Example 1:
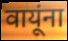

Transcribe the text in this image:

वायूंना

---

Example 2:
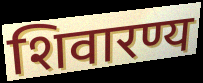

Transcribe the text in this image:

शिवारण्य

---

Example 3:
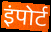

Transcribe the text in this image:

इंपोर्ट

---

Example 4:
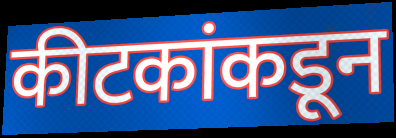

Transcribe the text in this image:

कीटकांकडून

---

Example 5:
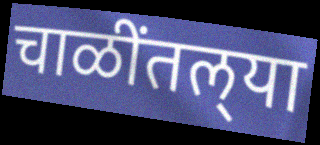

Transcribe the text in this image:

चाळींतल्या